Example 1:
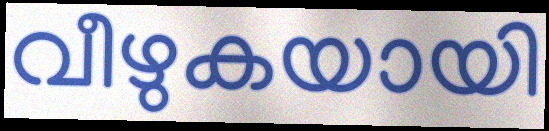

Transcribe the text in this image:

വീഴുകയായി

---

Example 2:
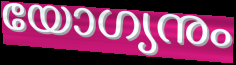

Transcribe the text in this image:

യോഗ്യനും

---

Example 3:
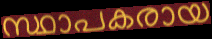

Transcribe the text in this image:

സ്ഥാപകരായ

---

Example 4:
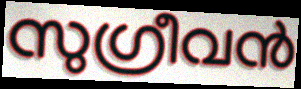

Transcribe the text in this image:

സുഗ്രീവൻ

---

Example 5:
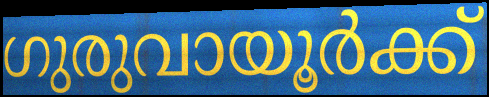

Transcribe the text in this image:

ഗുരുവായൂർക്ക്